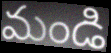
మండి